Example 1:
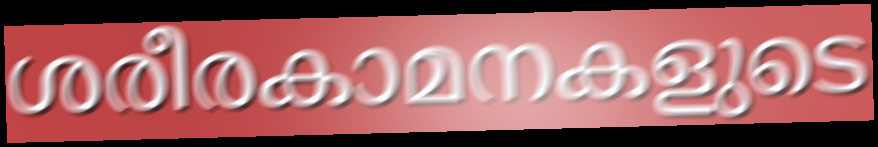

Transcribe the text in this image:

ശരീരകാമനകളുടെ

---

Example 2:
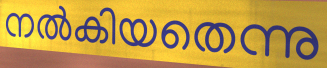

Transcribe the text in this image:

നൽകിയതെന്നു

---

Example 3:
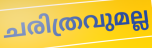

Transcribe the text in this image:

ചരിത്രവുമല്ല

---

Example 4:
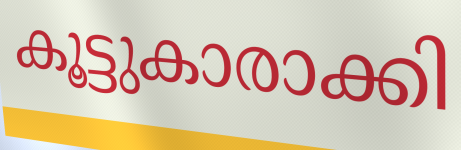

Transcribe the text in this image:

കൂട്ടുകാരാക്കി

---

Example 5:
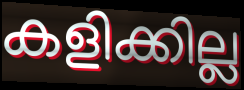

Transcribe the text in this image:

കളിക്കില്ല